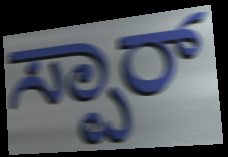
ಸ್ಪಾರ್